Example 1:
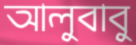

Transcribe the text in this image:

আলুবাবু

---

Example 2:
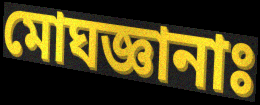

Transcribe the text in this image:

মোঘজ্ঞানাঃ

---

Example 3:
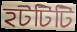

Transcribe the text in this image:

হটটিটি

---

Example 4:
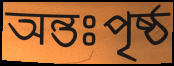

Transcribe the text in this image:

অন্তঃপৃষ্ঠ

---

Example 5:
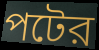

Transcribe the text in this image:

পটের